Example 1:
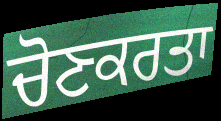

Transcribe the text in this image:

ਚੋਣਕਰਤਾ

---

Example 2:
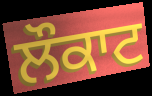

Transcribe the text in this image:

ਲੌਕਾਟ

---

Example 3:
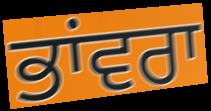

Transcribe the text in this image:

ਭਾਂਵਰਾ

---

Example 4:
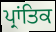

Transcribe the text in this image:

ਪ੍ਰਾਂਤਿਕ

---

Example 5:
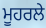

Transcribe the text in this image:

ਮੂਹਰਲੇ